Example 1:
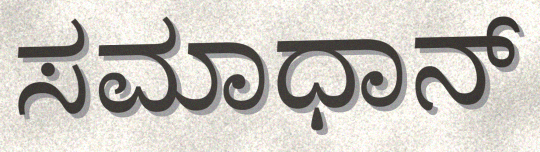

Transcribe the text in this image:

ಸಮಾಧಾನ್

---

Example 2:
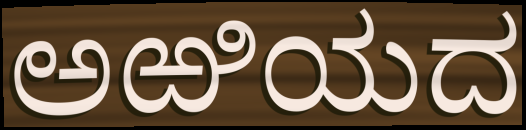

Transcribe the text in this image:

ಅಱಿಯದ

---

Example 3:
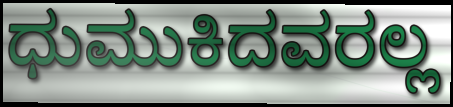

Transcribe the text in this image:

ಧುಮುಕಿದವರಲ್ಲ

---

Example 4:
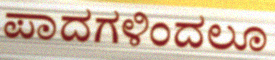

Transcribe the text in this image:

ಪಾದಗಳಿಂದಲೂ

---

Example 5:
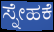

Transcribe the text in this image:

ಸ್ನೇಹಕೆ